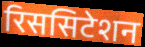
रिससिटेशन